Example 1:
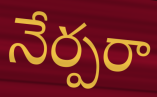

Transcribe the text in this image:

నేర్పరా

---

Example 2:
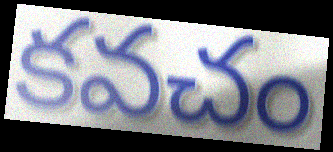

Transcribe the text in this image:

కవచం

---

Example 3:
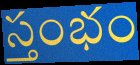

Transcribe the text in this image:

స్తంభం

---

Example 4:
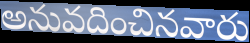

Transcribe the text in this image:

అనువదించినవారు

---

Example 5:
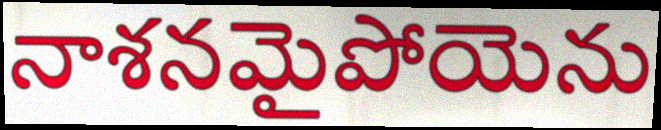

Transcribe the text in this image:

నాశనమైపోయెను